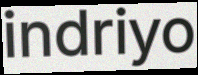
indriyo